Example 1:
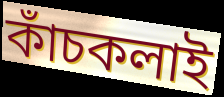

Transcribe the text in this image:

কাঁচকলাই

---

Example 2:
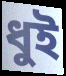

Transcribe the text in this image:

ধুই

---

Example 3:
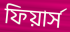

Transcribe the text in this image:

ফিয়ার্স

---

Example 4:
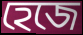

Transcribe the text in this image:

হেজে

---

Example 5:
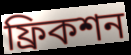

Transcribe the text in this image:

ফ্রিকশন